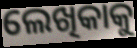
ଲେଖିକାକୁ